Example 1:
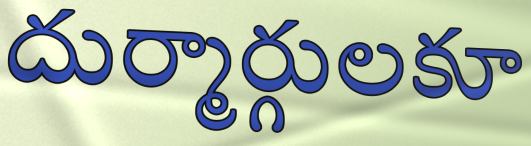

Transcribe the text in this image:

దుర్మార్గులకూ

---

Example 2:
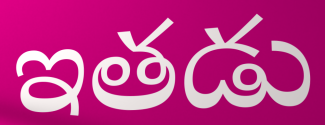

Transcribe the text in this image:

ఇతడు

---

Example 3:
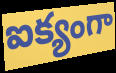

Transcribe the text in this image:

ఐక్యంగా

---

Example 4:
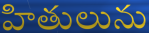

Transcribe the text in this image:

హితులును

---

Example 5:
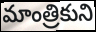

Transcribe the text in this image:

మాంత్రికుని